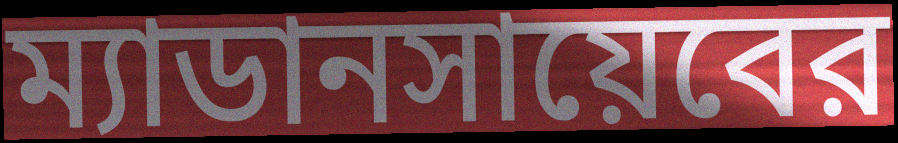
ম্যাডানসায়েবের